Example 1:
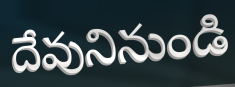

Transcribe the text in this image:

దేవునినుండి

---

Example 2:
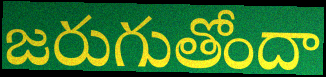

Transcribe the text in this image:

జరుగుతోందా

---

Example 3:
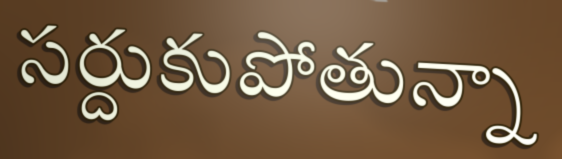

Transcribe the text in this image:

సర్దుకుపోతున్నా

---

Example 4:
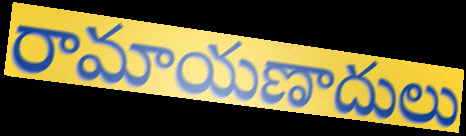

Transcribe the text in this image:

రామాయణాదులు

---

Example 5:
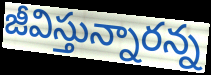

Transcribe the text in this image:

జీవిస్తున్నారన్న